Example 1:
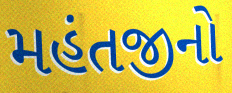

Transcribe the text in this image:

મહંતજીનો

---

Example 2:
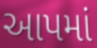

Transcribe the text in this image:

આપમાં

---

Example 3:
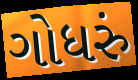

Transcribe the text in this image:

ગોધરું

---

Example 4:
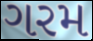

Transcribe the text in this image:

ગરમ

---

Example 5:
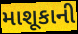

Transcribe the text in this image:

માશૂકાની